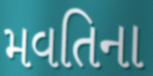
મવતિના